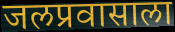
जलप्रवासाला